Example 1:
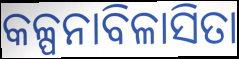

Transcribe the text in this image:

କଳ୍ପନାବିଳାସିତା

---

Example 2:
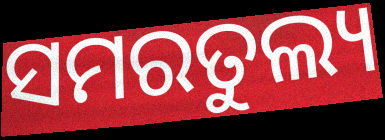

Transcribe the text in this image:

ସମରତୁଲ୍ୟ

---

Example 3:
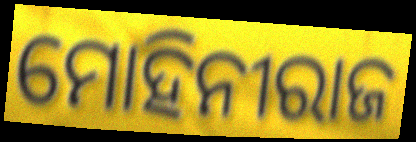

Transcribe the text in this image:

ମୋହିନୀରାଜ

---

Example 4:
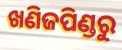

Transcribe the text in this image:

ଖଣିଜପିଣ୍ଡରୁ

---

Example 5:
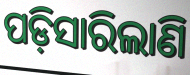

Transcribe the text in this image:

ପଡ଼ିସାରିଲାଣି